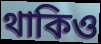
থাকিও